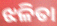
ଝଳିତା